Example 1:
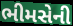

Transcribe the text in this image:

ભીમસેની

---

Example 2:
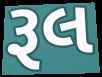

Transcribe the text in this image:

રૂલ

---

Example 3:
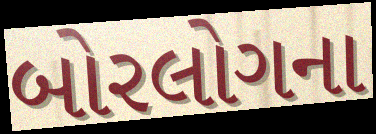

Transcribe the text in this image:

બોરલોગના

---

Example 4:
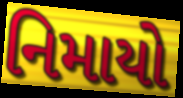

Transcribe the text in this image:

નિમાયો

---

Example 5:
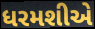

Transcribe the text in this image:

ધરમશીએ